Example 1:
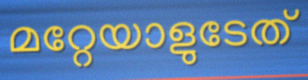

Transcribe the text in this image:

മറ്റേയാളുടേത്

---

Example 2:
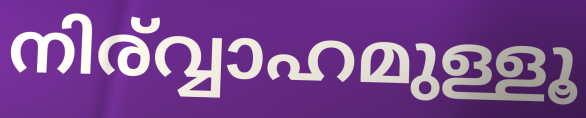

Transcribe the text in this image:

നിര്വ്വാഹമുള്ളൂ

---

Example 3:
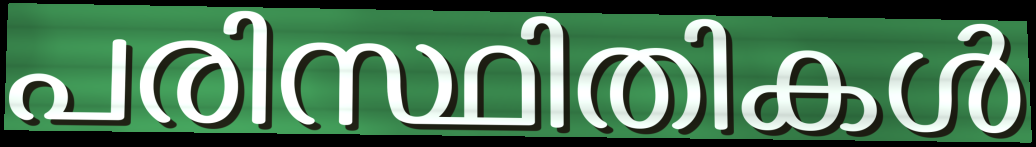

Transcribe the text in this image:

പരിസ്ഥിതികൾ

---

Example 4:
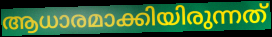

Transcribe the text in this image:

ആധാരമാക്കിയിരുന്നത്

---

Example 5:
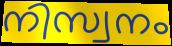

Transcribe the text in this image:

നിസ്വനം